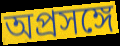
অপ্রসঙ্গে